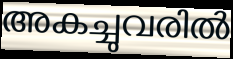
അകച്ചുവരിൽ